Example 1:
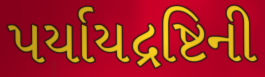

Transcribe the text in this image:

પર્યાયદ્રષ્ટિની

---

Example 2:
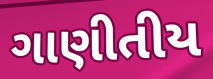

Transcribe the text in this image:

ગાણીતીય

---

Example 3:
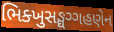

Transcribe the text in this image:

ભિક્ખુસઙ્ઘગ્ગહણેન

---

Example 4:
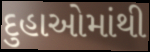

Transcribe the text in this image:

દુહાઓમાંથી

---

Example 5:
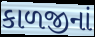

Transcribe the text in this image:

કાળજીનાં